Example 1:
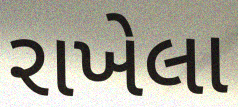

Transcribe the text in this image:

રાખેલા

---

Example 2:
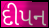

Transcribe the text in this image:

દીપન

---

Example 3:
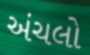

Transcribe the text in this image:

અંચલો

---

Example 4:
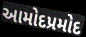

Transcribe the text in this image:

આમોદપ્રમોદ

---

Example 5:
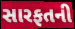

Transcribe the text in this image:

સારફતની